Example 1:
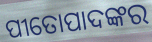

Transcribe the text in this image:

ପୀତୋପାଦଙ୍କର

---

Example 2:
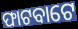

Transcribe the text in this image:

ଫାଟବାଟେ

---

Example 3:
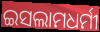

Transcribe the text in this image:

ଇସଲାମଧର୍ମୀ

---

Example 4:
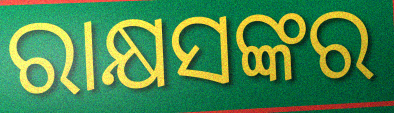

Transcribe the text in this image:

ରାକ୍ଷସଙ୍କର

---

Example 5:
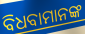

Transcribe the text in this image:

ବିଧବାମାନଙ୍କ